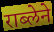
राब्लेने